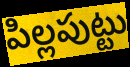
పిల్లపుట్టు